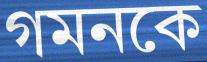
গমনকে